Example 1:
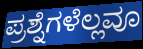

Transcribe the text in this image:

ಪ್ರಶ್ನೆಗಳೆಲ್ಲವೂ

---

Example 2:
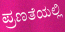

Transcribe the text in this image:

ಪ್ರಣತೆಯಲ್ಲಿ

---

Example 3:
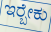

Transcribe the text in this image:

ಇರ‍್ಬೇಕು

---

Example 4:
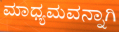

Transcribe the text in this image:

ಮಾಧ್ಯಮವನ್ನಾಗಿ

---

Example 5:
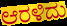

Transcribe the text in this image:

ಆರಳಿದು